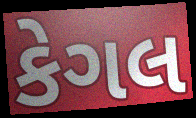
કેગલ